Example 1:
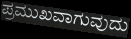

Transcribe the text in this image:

ಪ್ರಮುಖವಾಗುವುದು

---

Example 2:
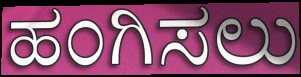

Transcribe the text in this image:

ಹಂಗಿಸಲು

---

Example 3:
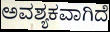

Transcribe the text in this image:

ಅವಶ್ಯಕವಾಗಿದೆ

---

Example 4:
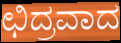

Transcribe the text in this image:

ಛಿದ್ರವಾದ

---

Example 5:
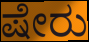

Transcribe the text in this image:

ಷೇರು